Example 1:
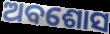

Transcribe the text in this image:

ଅବଶୋସ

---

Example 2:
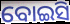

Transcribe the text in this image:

ବୋଇସି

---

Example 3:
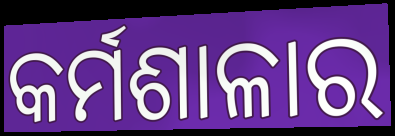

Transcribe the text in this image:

କର୍ମଶାଳାର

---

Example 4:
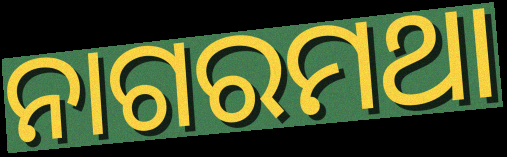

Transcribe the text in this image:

ନାଗରମଥା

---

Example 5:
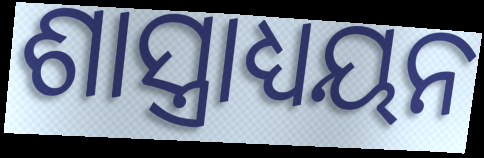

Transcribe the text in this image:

ଶାସ୍ତ୍ରାଧ୍ୟୟନ